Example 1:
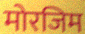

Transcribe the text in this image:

मोरजिम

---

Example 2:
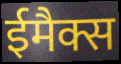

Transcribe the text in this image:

ईमैक्स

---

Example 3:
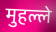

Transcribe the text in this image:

मुहल्ले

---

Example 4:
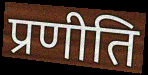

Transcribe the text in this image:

प्रणीति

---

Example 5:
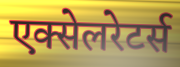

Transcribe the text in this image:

एक्सेलरेटर्स